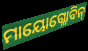
ମାୟୋଗ୍ଲୋବିନ୍